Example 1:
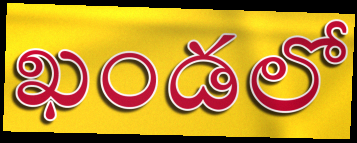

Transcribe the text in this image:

ఖండలో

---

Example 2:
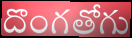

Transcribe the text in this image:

దొంగతోగు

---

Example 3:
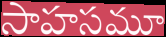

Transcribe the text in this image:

సాహసమూ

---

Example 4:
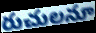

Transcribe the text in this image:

రుచులనూ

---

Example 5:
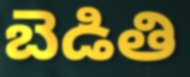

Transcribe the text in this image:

బెడితి